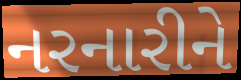
નરનારીને